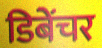
डिबेंचर